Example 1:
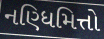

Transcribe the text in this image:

નણ્ધિમિત્તો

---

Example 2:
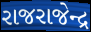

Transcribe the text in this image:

રાજરાજેન્દ્ર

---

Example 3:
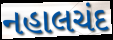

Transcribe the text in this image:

નહાલચંદ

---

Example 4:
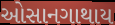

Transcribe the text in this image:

ઓસાનગાથાય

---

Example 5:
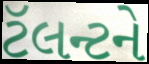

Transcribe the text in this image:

ટૅલન્ટને